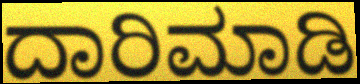
ದಾರಿಮಾಡಿ